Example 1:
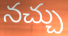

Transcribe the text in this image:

నచ్చు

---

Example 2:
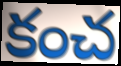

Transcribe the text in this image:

కంచ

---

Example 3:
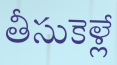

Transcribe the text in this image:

తీసుకెళ్లే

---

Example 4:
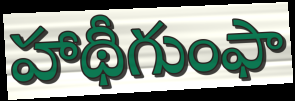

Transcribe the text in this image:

హాథీగుంఫా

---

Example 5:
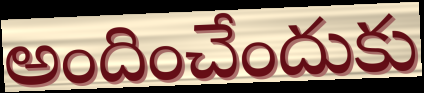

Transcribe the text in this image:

అందించేందుకు